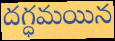
దగ్ధమయిన